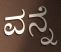
ವನ್ನೆ